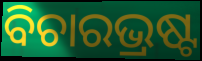
ବିଚାରଭ୍ରଷ୍ଟ